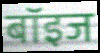
बॉइज